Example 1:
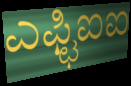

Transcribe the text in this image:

ಎಫ್ಟಿಐಐ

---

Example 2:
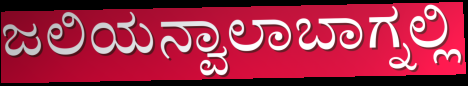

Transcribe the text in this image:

ಜಲಿಯನ್ವಾಲಾಬಾಗ್ನಲ್ಲಿ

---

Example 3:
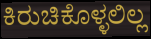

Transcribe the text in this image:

ಕಿರುಚಿಕೊಳ್ಳಲಿಲ್ಲ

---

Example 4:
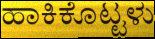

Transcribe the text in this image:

ಹಾಕಿಕೊಟ್ಟಳು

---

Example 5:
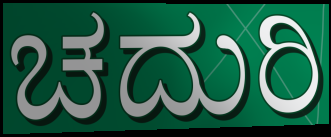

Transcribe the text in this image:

ಚದುರಿ